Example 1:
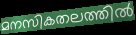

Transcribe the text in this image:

മനസികതലത്തിൽ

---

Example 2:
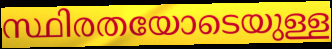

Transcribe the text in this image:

സ്ഥിരതയോടെയുള്ള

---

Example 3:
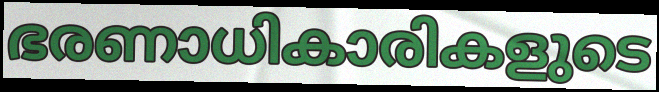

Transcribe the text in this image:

ഭരണാധികാരികളുടെ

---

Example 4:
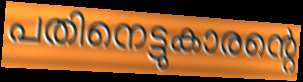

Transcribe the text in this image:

പതിനെട്ടുകാരന്റെ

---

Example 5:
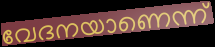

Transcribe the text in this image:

വേദനയാണെന്ന്